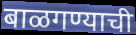
बाळगण्याची